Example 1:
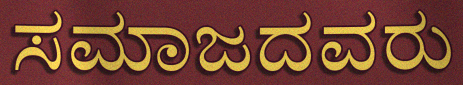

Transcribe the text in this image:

ಸಮಾಜದವರು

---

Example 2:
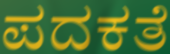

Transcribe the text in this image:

ಪದಕತೆ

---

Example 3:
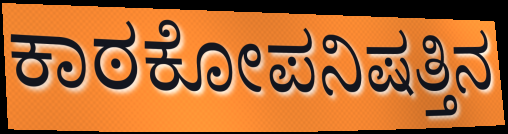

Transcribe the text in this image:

ಕಾಠಕೋಪನಿಷತ್ತಿನ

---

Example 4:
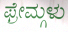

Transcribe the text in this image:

ಫ್ರೇಮ್ಗಳು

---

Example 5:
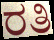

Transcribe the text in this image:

ರತಿ